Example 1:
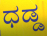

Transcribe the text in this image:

ಧಡ್ಡ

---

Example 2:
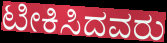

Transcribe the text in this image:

ಟೀಕಿಸಿದವರು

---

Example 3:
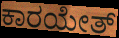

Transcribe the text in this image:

ಕಾರಯೇತ್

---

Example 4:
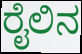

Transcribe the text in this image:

ರೈಲಿನ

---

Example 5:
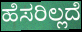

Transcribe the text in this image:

ಹೆಸರಿಲ್ಲದೆ